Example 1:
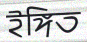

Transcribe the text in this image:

ইঙ্গিত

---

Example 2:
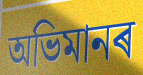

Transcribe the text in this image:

অভিমানৰ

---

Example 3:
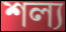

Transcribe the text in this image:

শল্য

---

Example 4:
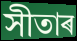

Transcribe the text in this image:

সীতাৰ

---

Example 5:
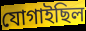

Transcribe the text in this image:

যোগাইছিল